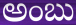
అంబు